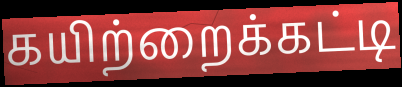
கயிற்றைக்கட்டி